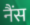
नैंस